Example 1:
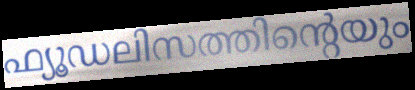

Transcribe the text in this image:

ഫ്യൂഡലിസത്തിന്റെയും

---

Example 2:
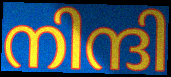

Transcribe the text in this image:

നിന്ദി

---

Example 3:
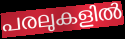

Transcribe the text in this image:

പരലുകളിൽ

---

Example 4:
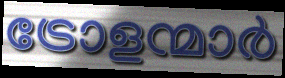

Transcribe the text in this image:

ട്രോളന്മാർ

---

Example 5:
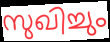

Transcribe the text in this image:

സുഖിച്ചും